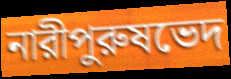
নারীপুরুষভেদ